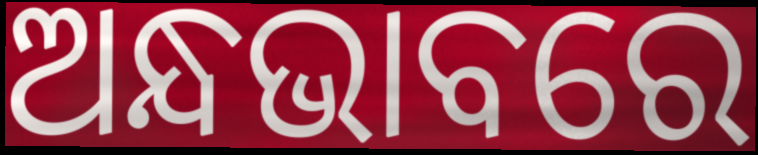
ଅନ୍ଧଭାବରେ